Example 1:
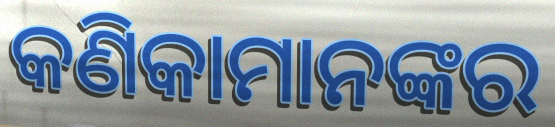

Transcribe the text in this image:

କଣିକାମାନଙ୍କର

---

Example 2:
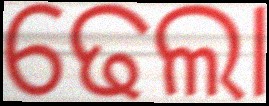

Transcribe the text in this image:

ଢେଲା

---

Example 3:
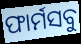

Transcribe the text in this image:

ଫାର୍ମସବୁ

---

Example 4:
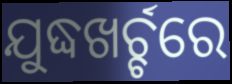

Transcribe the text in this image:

ଯୁଦ୍ଧଖର୍ଚ୍ଚରେ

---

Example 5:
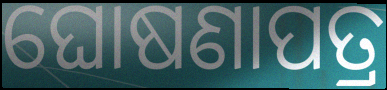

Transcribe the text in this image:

ଘୋଷଣାପତ୍ର